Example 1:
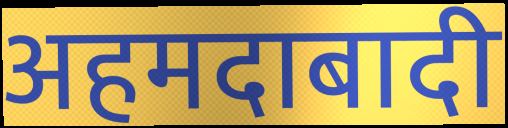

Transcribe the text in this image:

अहमदाबादी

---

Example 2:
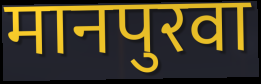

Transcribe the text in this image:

मानपुरवा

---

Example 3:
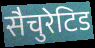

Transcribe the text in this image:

सैचुरेटिड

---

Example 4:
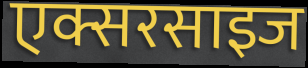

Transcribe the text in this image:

एक्सरसाइज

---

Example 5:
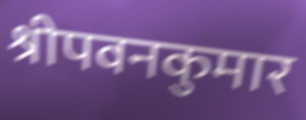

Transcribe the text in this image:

श्रीपवनकुमार